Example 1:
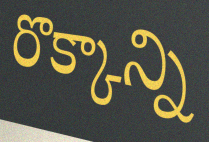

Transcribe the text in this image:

రొక్కాన్ని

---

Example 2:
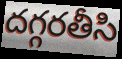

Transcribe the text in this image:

దగ్గరతీసి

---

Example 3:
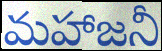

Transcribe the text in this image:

మహాజనీ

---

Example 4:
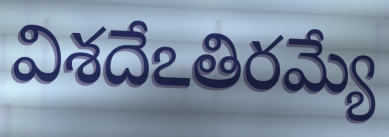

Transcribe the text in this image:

విశదేఽతిరమ్యే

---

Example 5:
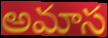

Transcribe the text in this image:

అమాస